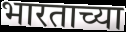
भारताच्या